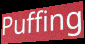
Puffing